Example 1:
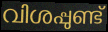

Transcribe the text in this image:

വിശപ്പുണ്ട്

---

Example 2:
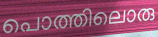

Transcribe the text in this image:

പൊത്തിലൊരു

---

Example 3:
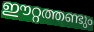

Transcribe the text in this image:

ഈറ്റത്തണ്ടും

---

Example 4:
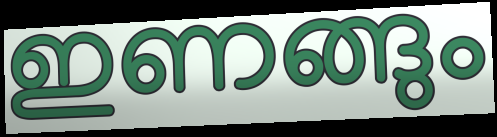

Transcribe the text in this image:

ഇണങ്ങും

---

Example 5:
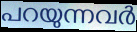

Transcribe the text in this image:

പറയുന്നവർ